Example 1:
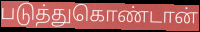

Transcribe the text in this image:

படுத்துகொண்டான்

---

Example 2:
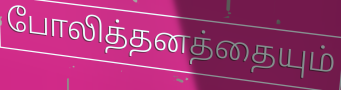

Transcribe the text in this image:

போலித்தனத்தையும்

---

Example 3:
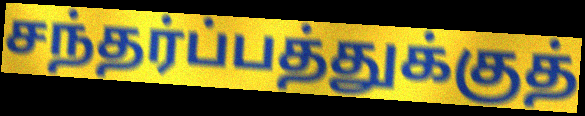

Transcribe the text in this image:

சந்தர்ப்பத்துக்குத்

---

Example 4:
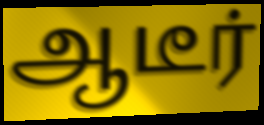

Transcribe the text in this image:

ஆடீர்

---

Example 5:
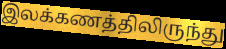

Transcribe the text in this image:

இலக்கணத்திலிருந்து